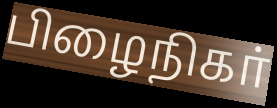
பிழைநிகர்